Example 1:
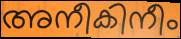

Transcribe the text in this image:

അനീകിനീം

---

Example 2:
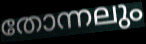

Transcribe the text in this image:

തോന്നലും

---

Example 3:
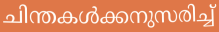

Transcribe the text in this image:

ചിന്തകൾക്കനുസരിച്ച്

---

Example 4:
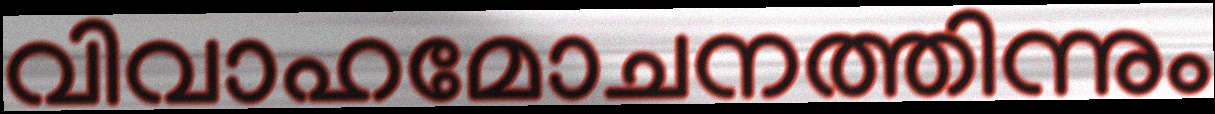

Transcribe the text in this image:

വിവാഹമോചനത്തിന്നും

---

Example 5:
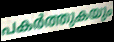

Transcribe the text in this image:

പകർത്തുകയും